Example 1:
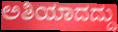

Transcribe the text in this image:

ಅತಿಯಾದದ್ದು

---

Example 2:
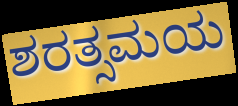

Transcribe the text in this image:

ಶರತ್ಸಮಯ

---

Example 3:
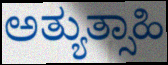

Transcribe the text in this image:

ಅತ್ಯುತ್ಸಾಹಿ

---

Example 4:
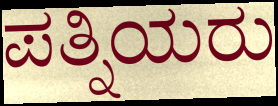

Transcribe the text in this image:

ಪತ್ನಿಯರು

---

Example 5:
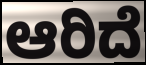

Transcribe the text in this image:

ಆರಿದೆ